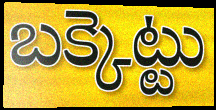
బక్కెట్టు